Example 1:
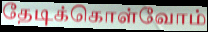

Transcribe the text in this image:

தேடிக்கொள்வோம்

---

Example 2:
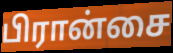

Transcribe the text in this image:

பிரான்சை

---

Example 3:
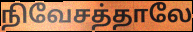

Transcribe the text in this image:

நிவேசத்தாலே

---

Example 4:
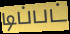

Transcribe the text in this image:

டிப்பட்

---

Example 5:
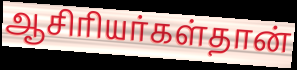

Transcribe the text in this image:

ஆசிரியர்கள்தான்